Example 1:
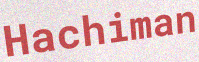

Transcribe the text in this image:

Hachiman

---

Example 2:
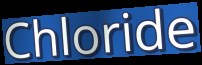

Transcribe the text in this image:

Chloride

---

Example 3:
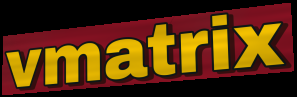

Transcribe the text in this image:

vmatrix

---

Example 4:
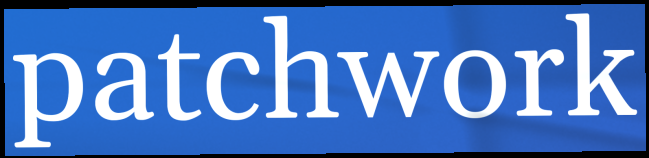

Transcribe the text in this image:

patchwork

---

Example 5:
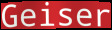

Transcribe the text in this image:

Geiser